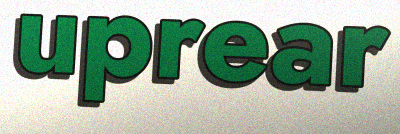
uprear